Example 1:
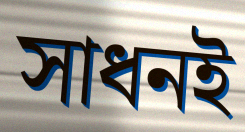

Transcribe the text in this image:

সাধনই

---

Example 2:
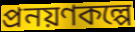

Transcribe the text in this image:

প্রনয়ণকল্পে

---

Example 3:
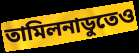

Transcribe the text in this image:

তামিলনাডুতেও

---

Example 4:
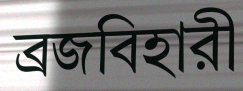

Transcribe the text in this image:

ব্রজবিহারী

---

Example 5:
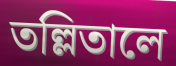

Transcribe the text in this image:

তল্লিতালে